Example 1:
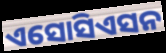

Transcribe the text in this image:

ଏସୋସିଏସନ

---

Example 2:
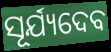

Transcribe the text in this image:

ସୂର୍ଯ୍ୟଦେବ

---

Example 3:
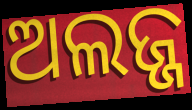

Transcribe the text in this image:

ଅଲଜ୍ଜ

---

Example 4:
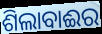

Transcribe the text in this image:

ଶିଲାବାଈର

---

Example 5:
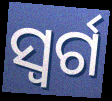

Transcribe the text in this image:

ସ୍ବର୍ଗ